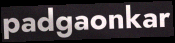
padgaonkar